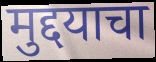
मुद्दयाचा